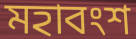
মহাবংশ